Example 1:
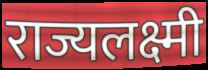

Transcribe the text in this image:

राज्यलक्ष्मी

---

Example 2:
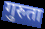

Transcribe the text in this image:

गुरुता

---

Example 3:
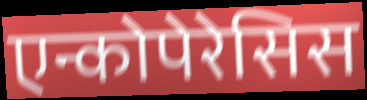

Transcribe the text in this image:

एन्कोपेरेसिस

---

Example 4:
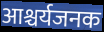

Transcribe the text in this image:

आश्चर्यजनक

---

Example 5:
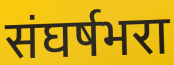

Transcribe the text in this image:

संघर्षभरा